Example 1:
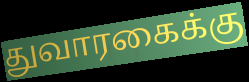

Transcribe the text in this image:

துவாரகைக்கு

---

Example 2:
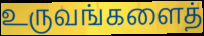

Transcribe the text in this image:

உருவங்களைத்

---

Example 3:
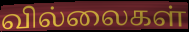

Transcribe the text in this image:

வில்லைகள்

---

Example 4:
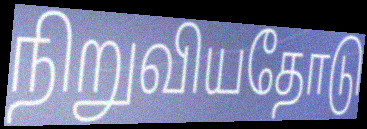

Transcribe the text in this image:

நிறுவியதோடு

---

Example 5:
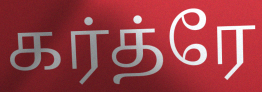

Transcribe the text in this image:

கர்த்ரே